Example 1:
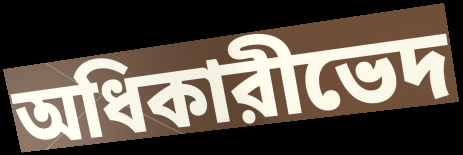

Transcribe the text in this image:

অধিকারীভেদ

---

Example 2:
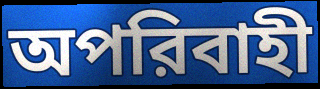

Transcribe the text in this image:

অপরিবাহী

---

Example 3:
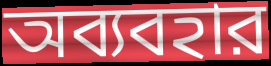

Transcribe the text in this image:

অব্যবহার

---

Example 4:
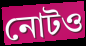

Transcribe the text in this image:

নোটও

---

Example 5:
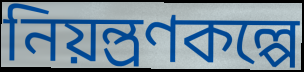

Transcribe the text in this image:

নিয়ন্ত্রণকল্পে